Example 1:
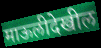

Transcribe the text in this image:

माऊलीदेखील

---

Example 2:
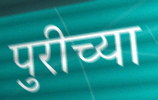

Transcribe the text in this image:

पुरीच्या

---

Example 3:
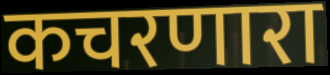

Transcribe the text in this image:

कचरणारा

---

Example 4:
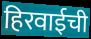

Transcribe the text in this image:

हिरवाईची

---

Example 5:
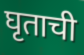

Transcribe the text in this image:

घृताची